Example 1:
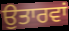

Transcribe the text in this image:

ਉਤਾਰਵਾਂ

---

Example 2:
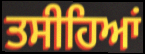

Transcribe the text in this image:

ਤਸੀਹਿਆਂ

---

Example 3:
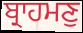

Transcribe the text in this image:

ਬ੍ਰਾਹਮਣੁ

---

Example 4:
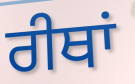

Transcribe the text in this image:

ਰੀਥਾਂ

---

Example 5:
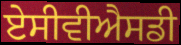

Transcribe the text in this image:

ਏਸੀਵੀਐਸਡੀ